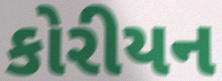
કોરીયન